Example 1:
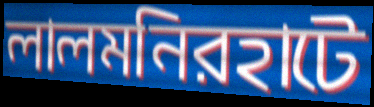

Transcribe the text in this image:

লালমনিরহাটে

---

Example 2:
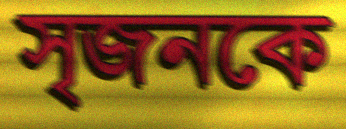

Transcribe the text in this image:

সৃজনকে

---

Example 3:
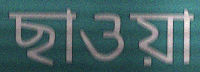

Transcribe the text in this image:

ছাওয়া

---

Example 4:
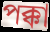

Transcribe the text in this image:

পক্কা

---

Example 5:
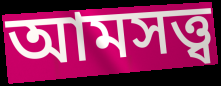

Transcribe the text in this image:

আমসত্ত্ব